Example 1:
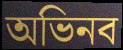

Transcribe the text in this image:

অভিনব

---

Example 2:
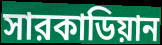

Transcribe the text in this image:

সারকাডিয়ান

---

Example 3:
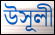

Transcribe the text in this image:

উসূলী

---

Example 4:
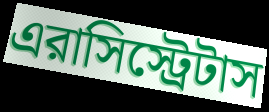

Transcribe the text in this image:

এরাসিস্ট্রেটাস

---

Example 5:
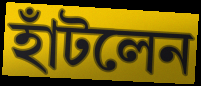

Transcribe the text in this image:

হাঁটলেন